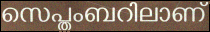
സെപ്തംബറിലാണ്